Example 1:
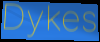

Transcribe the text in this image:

Dykes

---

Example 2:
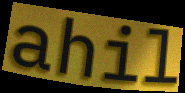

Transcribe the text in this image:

ahil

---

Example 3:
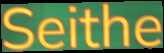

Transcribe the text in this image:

Seithe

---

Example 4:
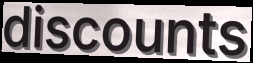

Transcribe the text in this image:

discounts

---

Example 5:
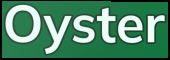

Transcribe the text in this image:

Oyster